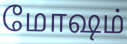
மோஷம்